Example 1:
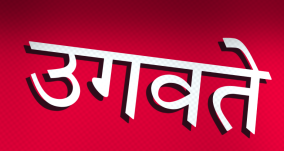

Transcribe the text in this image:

उगवते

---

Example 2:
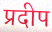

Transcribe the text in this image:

प्रदीप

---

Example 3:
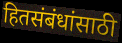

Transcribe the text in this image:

हितसंबंधांसाठी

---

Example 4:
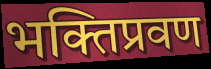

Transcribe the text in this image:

भक्तिप्रवण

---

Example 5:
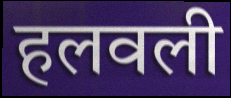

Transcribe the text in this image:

हलवली